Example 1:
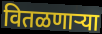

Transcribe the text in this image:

वितळणाऱ्या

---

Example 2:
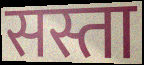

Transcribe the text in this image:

सस्ता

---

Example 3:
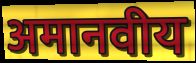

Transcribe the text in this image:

अमानवीय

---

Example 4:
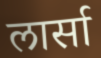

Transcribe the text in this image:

लार्सा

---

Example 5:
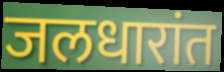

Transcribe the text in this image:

जलधारांत